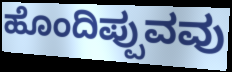
ಹೊಂದಿಪ್ಪುವವು